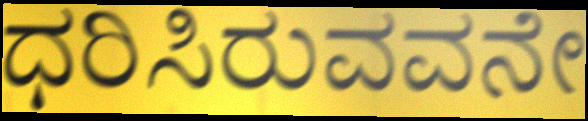
ಧರಿಸಿರುವವನೇ